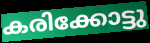
കരിക്കോട്ടു